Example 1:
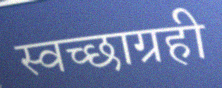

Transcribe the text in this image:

स्वच्छाग्रही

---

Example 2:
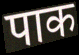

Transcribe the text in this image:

पाक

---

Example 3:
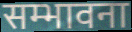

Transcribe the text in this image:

सम्भावना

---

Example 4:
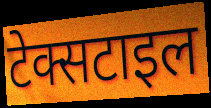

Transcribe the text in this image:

टेक्सटाइल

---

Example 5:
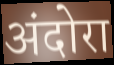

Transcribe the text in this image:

अंदोरा